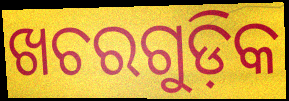
ଖଚରଗୁଡ଼ିକ